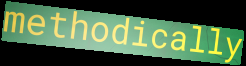
methodically